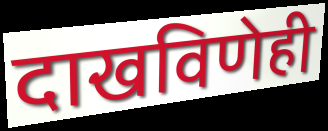
दाखविणेही